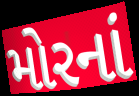
મોરનાં